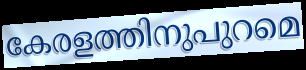
കേരളത്തിനുപുറമെ